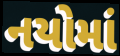
નયોમાં